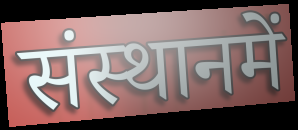
संस्थानमें